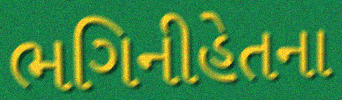
ભગિનીહેતના